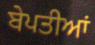
ਬੇਪਤੀਆਂ